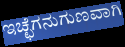
ಇಚ್ಛೆಗನುಗುಣವಾಗಿ